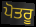
ਪੋਤਰੂ